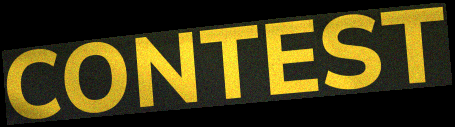
CONTEST